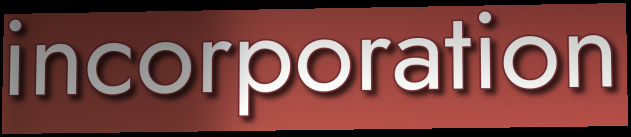
incorporation